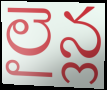
లైన్ల